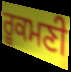
ਰੂਕਮਣੀ